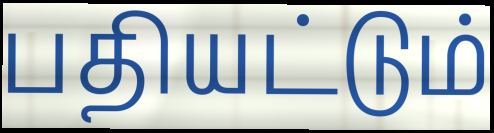
பதியட்டும்